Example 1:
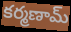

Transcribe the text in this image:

కర్మణామ్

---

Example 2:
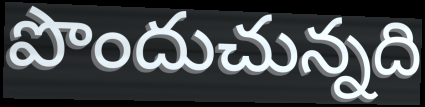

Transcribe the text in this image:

పొందుచున్నది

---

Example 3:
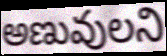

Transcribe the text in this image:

అణువులని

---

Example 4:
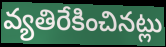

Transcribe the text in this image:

వ్యతిరేకించినట్లు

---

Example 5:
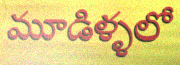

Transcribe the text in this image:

మూడిళ్ళలో